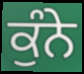
ਕੁੰਨੇ